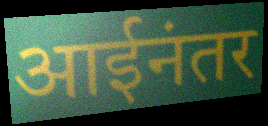
आईनंतर